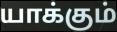
யாக்கும்